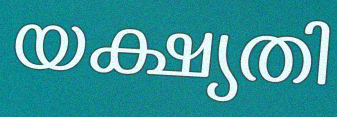
യക്ഷ്യതി